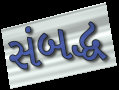
સંબદ્ધ